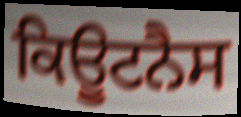
ਕਿਊਟਨੈਸ